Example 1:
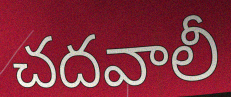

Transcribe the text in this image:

చదవాలీ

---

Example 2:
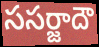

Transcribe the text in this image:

ససర్జాదౌ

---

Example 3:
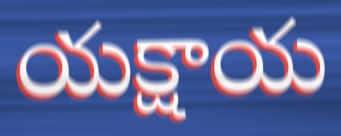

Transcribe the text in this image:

యక్షాయ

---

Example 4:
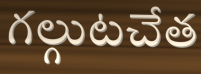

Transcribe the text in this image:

గల్గుటచేత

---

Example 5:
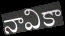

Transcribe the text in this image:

నావికా